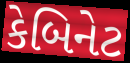
કેબિનેટ